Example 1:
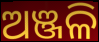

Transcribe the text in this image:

ଅଞ୍ଜଳି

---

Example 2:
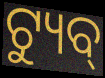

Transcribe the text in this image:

ଟ୍ୟୁବ୍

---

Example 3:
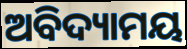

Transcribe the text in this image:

ଅବିଦ୍ୟାମୟ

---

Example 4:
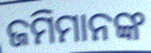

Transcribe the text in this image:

ଜମିମାନଙ୍କ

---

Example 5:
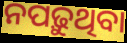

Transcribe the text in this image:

ନପଢ଼ୁଥିବା